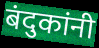
बंदुकांनी